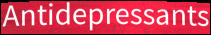
Antidepressants